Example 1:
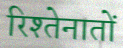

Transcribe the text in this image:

रिश्तेनातों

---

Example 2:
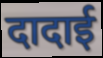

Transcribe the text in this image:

दादाई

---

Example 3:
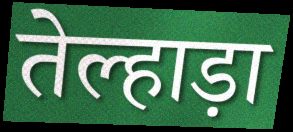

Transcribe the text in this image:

तेल्हाड़ा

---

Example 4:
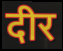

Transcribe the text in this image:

दीर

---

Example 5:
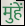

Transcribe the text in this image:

मुंहें